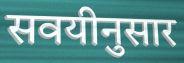
सवयीनुसार